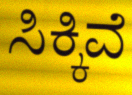
ಸಿಕ್ಕಿವೆ